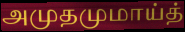
அமுதமுமாய்த்